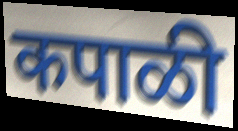
कपाळी